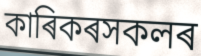
কাৰিকৰসকলৰ